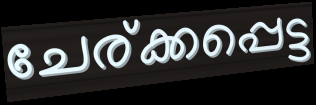
ചേര്ക്കപ്പെട്ട